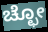
ಚ್ಛೋ